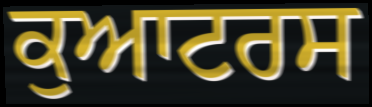
ਕੁਆਟਰਸ